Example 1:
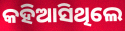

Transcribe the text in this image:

କହିଆସିଥିଲେ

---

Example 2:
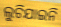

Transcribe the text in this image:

ଲୁଚିଯାଇନି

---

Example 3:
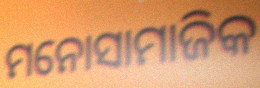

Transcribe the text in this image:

ମନୋସାମାଜିକ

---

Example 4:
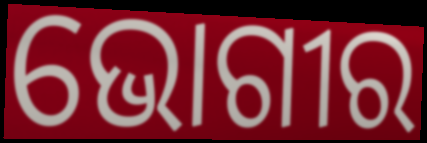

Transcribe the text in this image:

ଭୋଗୀର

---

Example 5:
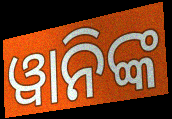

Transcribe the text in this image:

ୱାନିଙ୍କ